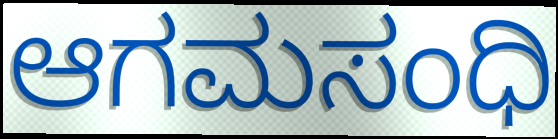
ಆಗಮಸಂಧಿ